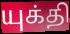
யுக்தி